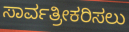
ಸಾರ್ವತ್ರೀಕರಿಸಲು